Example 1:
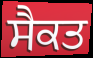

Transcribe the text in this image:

ਸੈਕਤ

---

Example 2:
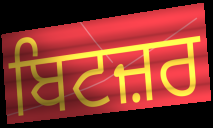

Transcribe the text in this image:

ਬਿਟਜ਼ਰ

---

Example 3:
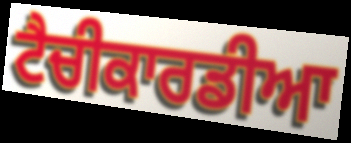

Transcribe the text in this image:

ਟੈਚੀਕਾਰਡੀਆ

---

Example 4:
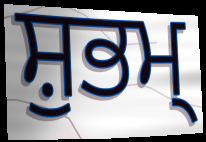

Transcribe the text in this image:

ਸ਼ੁਭਮ੍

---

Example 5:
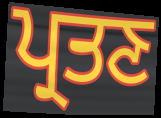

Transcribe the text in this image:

ਪ੍ਰਤਣ